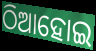
ଠିଆହୋଇ